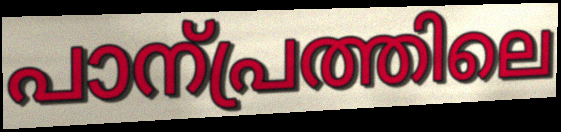
പാന്പ്രത്തിലെ